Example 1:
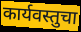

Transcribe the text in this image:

कार्यवस्तुचा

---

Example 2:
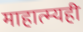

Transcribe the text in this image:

माहात्म्यही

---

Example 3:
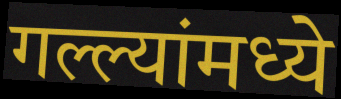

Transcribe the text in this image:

गल्ल्यांमध्ये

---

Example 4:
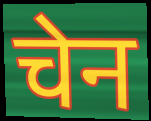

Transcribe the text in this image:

चेन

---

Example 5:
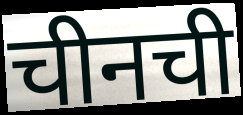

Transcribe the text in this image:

चीनची